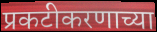
प्रकटीकरणाच्या